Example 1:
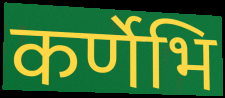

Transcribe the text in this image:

कर्णेभि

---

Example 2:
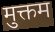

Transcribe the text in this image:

मुक्तम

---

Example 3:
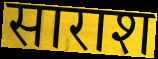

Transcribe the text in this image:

साराश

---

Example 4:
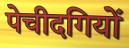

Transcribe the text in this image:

पेचीदगियों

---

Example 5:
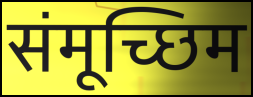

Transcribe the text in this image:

संमूच्छिम